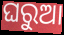
ଘରୁଆ